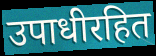
उपाधीरहित